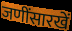
जणींसारखें